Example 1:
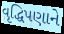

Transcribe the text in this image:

વૃદ્ધિપણાને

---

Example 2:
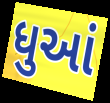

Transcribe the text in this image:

ધુઆં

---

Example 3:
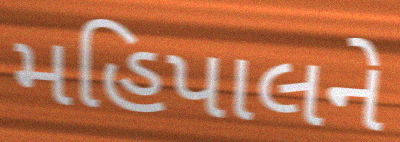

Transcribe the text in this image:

મહિપાલને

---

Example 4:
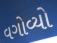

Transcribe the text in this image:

વગોવ્યો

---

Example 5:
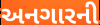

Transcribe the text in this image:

અનગારની